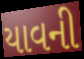
યાવની